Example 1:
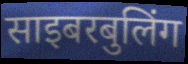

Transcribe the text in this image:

साइबरबुलिंग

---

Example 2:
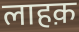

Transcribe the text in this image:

लाहक़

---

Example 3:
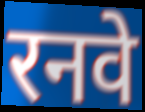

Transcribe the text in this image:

रनवे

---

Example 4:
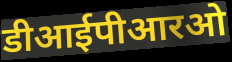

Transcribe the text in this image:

डीआईपीआरओ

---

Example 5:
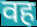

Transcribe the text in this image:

वह